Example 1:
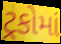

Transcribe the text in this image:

ટ્રકોમાં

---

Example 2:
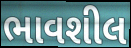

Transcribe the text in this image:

ભાવશીલ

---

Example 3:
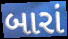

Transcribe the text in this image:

બારાં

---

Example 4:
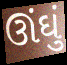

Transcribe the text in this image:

ઊંઘું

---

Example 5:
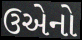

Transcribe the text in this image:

ઉએનો